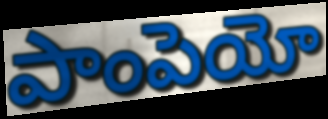
పాంపెయో